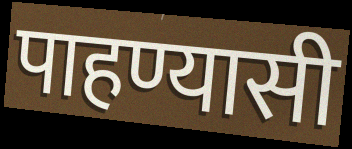
पाहण्यासी